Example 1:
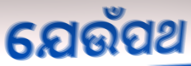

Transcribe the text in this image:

ଯେଉଁପଥ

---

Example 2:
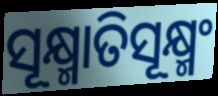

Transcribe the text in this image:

ସୂକ୍ଷ୍ମାତିସୂକ୍ଷ୍ମଂ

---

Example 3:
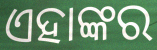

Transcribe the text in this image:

ଏହାଙ୍କର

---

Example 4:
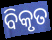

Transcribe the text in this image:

ବିକୃତ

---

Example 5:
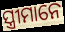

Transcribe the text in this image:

ସ୍ତ୍ରୀମାନେ